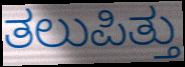
ತಲುಪಿತ್ತು